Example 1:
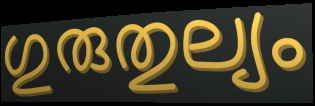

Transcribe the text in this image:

ഗുരുതുല്യം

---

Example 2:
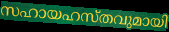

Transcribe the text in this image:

സഹായഹസ്തവുമായി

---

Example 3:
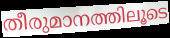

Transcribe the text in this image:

തീരുമാനത്തിലൂടെ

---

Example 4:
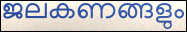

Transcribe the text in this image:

ജലകണങ്ങളും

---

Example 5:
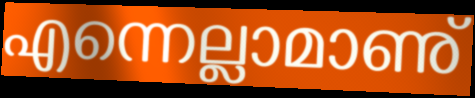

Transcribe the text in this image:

എന്നെല്ലാമാണു്